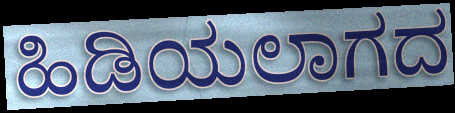
ಹಿಡಿಯಲಾಗದ